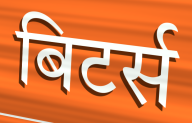
बिटर्स